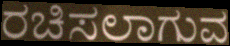
ರಚಿಸಲಾಗುವ